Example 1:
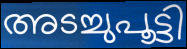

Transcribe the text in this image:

അടച്ചുപൂട്ടി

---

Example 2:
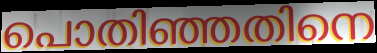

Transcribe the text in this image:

പൊതിഞ്ഞതിനെ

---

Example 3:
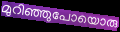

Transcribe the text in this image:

മുറിഞ്ഞുപോയൊരു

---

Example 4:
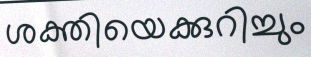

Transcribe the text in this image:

ശക്തിയെക്കുറിച്ചും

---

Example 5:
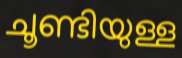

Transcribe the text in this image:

ചൂണ്ടിയുള്ള